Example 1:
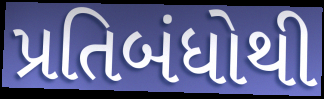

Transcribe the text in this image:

પ્રતિબંધોથી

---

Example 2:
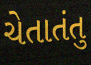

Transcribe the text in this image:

ચેતાતંતુ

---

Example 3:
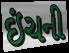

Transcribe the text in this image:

ઇંચની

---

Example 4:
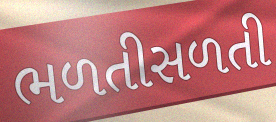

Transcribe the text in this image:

ભળતીસળતી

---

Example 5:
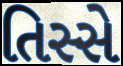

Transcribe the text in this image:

તિસ્સે